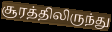
சூரத்திலிருந்து